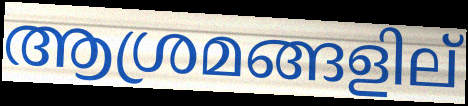
ആശ്രമങ്ങളില്